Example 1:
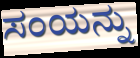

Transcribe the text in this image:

ಸಂಯನ್ನು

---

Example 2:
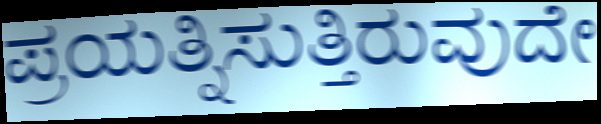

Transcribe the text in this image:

ಪ್ರಯತ್ನಿಸುತ್ತಿರುವುದೇ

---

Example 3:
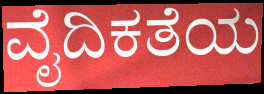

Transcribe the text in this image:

ವೈದಿಕತೆಯ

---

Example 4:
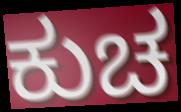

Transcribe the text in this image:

ಕುಚ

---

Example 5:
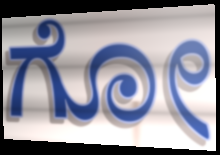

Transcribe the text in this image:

ಗೋ